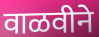
वाळवीने